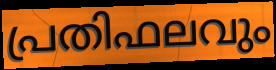
പ്രതിഫലവും